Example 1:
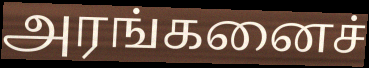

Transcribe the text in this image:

அரங்கனைச்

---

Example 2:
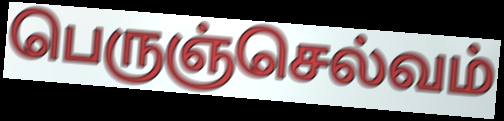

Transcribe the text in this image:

பெருஞ்செல்வம்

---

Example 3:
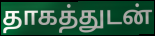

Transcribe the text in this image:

தாகத்துடன்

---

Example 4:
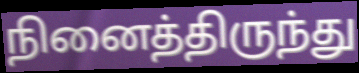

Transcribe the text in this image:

நினைத்திருந்து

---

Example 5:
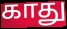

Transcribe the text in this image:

காது